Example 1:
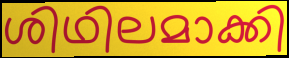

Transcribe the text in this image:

ശിഥിലമാക്കി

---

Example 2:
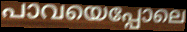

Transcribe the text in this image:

പാവയെപ്പോലെ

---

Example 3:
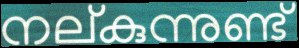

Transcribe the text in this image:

നല്കുന്നുണ്ട്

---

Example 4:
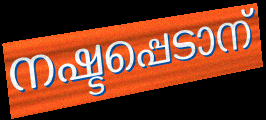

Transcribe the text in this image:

നഷ്ടപ്പെടാന്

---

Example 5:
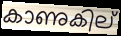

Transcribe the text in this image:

കാണുകില്